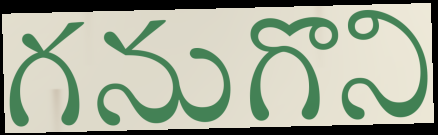
గనుగొని